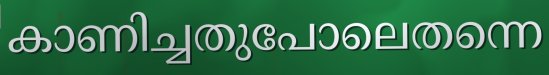
കാണിച്ചതുപോലെതന്നെ